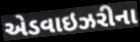
એડવાઇઝરીના